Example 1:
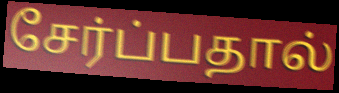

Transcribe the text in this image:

சேர்ப்பதால்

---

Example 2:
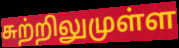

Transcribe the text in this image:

சுற்றிலுமுள்ள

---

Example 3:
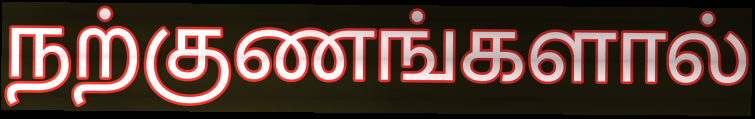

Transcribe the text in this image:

நற்குணங்களால்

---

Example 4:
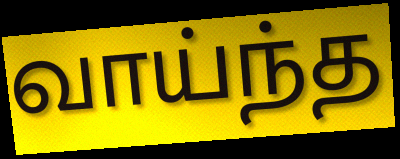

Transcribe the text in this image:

வாய்ந்த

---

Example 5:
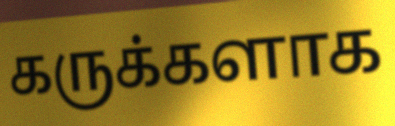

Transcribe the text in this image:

கருக்களாக